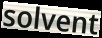
solvent